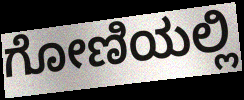
ಗೋಣಿಯಲ್ಲಿ